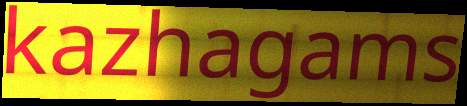
kazhagams